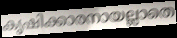
കൃഷിക്കാരനായല്ലാതെ